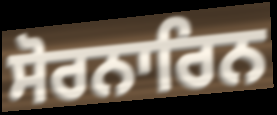
ਸੋਰਨਾਰਿਨ